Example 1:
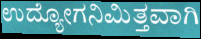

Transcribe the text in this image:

ಉದ್ಯೋಗನಿಮಿತ್ತವಾಗಿ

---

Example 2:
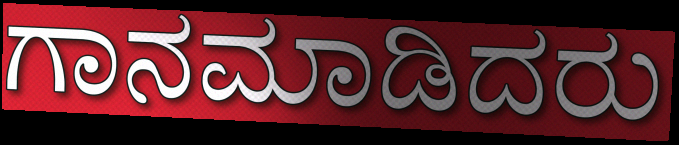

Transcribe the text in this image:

ಗಾನಮಾಡಿದರು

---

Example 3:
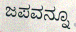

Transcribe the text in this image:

ಜಪವನ್ನೂ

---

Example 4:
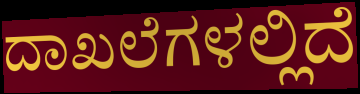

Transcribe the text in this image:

ದಾಖಲೆಗಳಲ್ಲಿದೆ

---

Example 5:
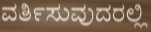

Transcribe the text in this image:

ವರ್ತಿಸುವುದರಲ್ಲಿ